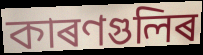
কাৰণগুলিৰ